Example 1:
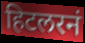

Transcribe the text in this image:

हिटलरनं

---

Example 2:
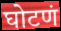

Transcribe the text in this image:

घोटणं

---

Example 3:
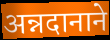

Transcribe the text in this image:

अन्नदानाने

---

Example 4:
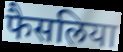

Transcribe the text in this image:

फैसलिया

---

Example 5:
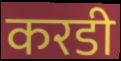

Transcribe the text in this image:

करडी